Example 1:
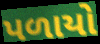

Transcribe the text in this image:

પળાયો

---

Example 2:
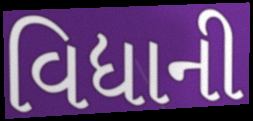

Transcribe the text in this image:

વિદ્યાની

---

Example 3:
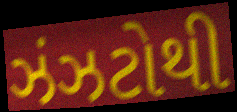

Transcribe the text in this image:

ઝંઝટોથી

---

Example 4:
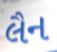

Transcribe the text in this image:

લૈન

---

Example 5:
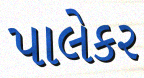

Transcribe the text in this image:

પાલેકર